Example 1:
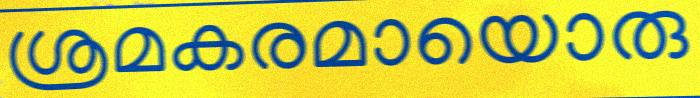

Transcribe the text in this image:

ശ്രമകരമായൊരു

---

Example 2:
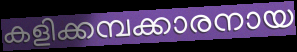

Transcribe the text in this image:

കളിക്കമ്പക്കാരനായ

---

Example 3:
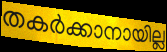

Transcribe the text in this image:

തകർക്കാനായില്ല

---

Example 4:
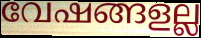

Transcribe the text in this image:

വേഷങ്ങളല്ല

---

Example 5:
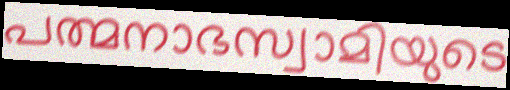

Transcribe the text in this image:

പത്മനാഭസ്വാമിയുടെ